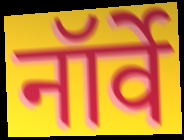
नॉर्वे